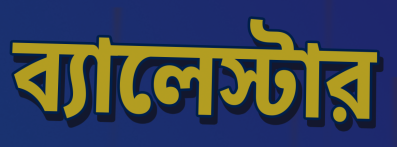
ব্যালেস্টার